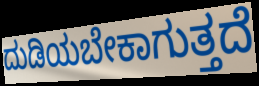
ದುಡಿಯಬೇಕಾಗುತ್ತದೆ